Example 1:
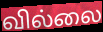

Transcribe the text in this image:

வில்லை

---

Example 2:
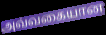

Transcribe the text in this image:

அவ்வகையான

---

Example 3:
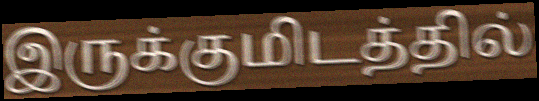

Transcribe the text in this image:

இருக்குமிடத்தில்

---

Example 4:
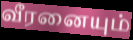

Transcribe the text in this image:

வீரனையும்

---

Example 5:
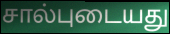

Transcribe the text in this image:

சால்புடையது